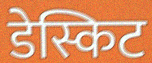
डेस्किट